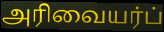
அரிவையர்ப்